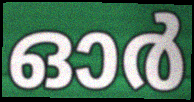
ഓർ